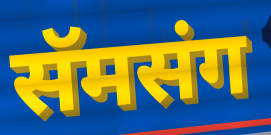
सॅमसंग